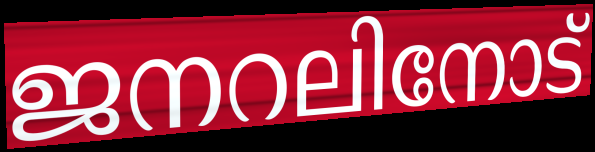
ജനറലിനോട്